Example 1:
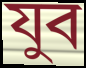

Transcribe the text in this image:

যুব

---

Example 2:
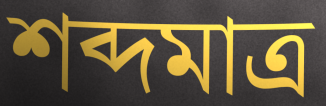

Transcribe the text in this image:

শব্দমাত্র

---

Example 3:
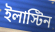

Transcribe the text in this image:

ইলাস্টিন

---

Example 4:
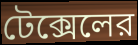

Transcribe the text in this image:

টেক্সেলের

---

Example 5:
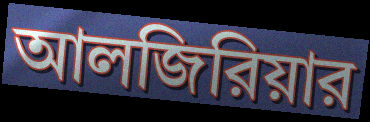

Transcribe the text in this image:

আলজিরিয়ার